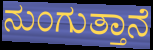
ನುಂಗುತ್ತಾನೆ